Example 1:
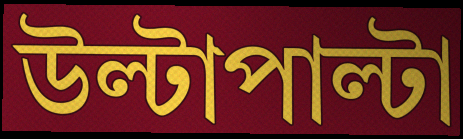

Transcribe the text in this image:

উল্টাপাল্টা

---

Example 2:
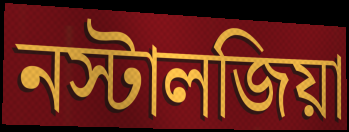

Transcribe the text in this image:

নস্টালজিয়া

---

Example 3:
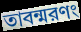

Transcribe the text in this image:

তাবন্মরণং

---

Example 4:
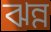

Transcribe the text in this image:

ঝন্ন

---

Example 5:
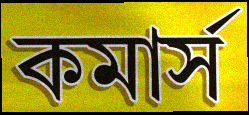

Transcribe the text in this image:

কমার্স